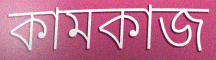
কামকাজ